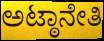
ಅಟ್ಠಾನೇತಿ